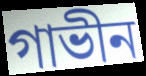
গাভীন